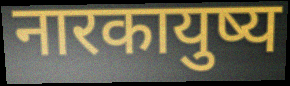
नारकायुष्य